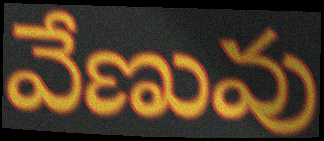
వేణువు